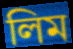
লিম